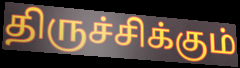
திருச்சிக்கும்